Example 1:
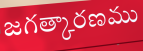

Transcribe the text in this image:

జగత్కారణము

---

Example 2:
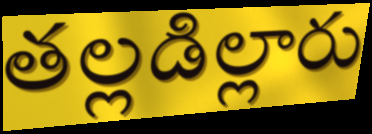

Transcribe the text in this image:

తల్లడిల్లారు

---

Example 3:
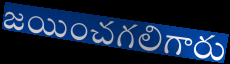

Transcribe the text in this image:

జయించగలిగారు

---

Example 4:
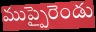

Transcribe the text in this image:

ముప్పైరెండు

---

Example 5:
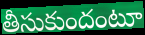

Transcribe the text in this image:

తీసుకుందంటూ